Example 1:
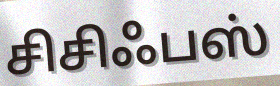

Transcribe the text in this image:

சிசிஃபஸ்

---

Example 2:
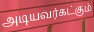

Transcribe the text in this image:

அடியவர்கட்கும்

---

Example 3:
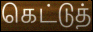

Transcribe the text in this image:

கெட்டுத்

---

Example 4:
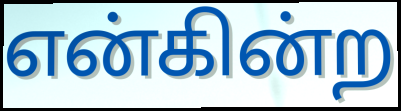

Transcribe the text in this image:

என்கின்ற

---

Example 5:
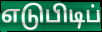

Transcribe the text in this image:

எடுபிடிப்